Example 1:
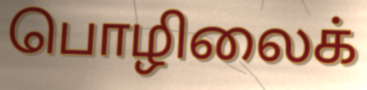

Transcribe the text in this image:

பொழிலைக்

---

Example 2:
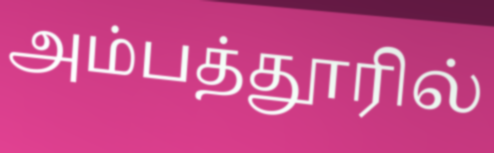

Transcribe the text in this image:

அம்பத்தூரில்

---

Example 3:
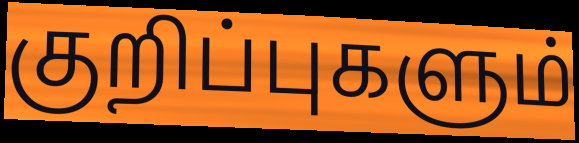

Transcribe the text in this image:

குறிப்புகளும்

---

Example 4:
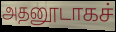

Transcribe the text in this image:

அதனூடாகச்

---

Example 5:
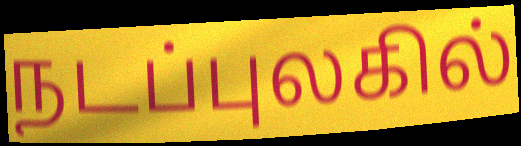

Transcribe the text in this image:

நடப்புலகில்